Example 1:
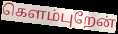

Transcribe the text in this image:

கெளம்புறேன்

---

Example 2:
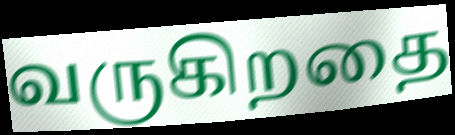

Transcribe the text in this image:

வருகிறதை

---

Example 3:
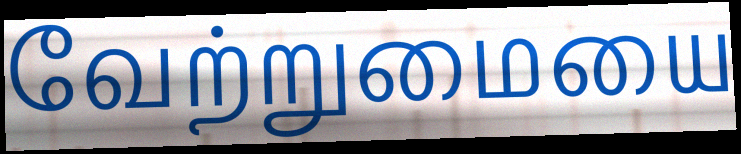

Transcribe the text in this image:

வேற்றுமையை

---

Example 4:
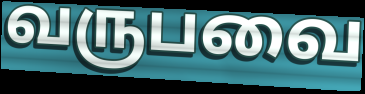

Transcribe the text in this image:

வருபவை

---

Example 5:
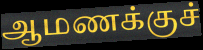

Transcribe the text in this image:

ஆமணக்குச்